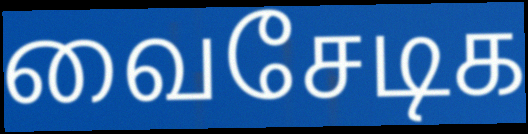
வைசேடிக